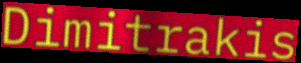
Dimitrakis